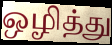
ஒழித்து